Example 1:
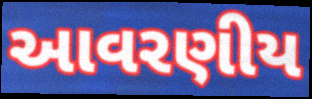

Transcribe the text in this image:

આવરણીય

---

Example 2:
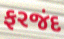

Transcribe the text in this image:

ફરજંદ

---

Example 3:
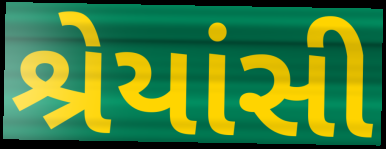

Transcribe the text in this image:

શ્રેયાંસી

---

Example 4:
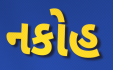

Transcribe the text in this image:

નકોહ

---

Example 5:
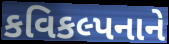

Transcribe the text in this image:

કવિકલ્પનાને